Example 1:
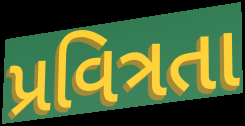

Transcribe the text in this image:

પ્રવિત્રતા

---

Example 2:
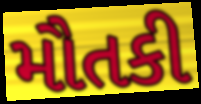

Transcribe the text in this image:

મૌતકી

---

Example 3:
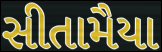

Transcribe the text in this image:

સીતામૈયા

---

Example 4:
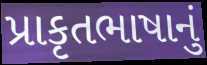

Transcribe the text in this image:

પ્રાકૃતભાષાનું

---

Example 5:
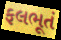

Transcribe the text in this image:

ફલભૂતં